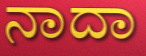
ನಾದಾ